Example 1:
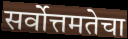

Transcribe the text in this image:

सर्वोत्तमतेचा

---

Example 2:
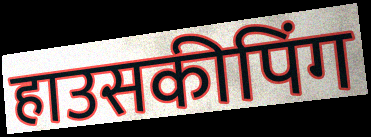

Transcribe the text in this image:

हाउसकीपिंग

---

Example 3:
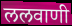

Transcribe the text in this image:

ललवाणी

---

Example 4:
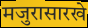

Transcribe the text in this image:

मजुरासारखे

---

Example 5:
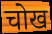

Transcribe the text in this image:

चोख